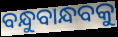
ବନ୍ଧୁବାନ୍ଧବକୁ